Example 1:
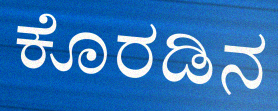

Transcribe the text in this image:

ಕೊರಡಿನ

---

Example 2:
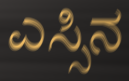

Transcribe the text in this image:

ಎಸ್ಸಿನ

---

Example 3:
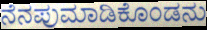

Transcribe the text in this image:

ನೆನಪುಮಾಡಿಕೊಂಡನು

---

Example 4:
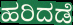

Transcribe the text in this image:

ಹರಿದಡೆ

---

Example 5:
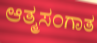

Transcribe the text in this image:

ಆತ್ಮಸಂಗಾತ